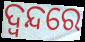
ଦ୍ଵନ୍ଦରେ